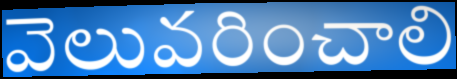
వెలువరించాలి